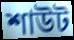
শাউট